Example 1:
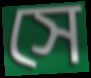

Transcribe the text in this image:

সে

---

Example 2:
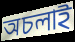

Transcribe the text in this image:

অচলাই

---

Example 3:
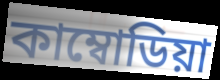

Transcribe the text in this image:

কাম্বোডিয়া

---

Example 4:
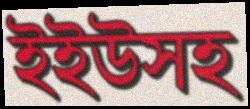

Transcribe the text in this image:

ইইউসহ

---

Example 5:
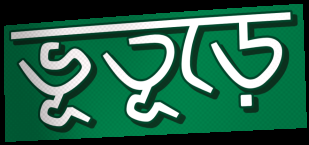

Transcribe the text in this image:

ভূতূড়ে